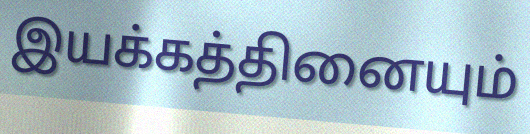
இயக்கத்தினையும்